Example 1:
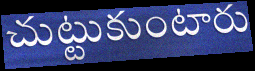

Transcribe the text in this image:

చుట్టుకుంటారు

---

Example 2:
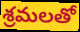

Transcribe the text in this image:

శ్రమలతో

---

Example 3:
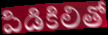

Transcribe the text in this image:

పిడికిలితో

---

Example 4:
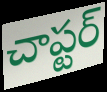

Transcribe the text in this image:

చాప్టర్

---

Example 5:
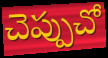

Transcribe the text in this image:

చెప్పుచో